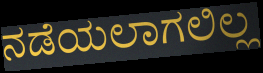
ನಡೆಯಲಾಗಲಿಲ್ಲ